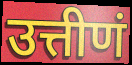
उत्तीणं